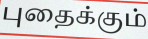
புதைக்கும்